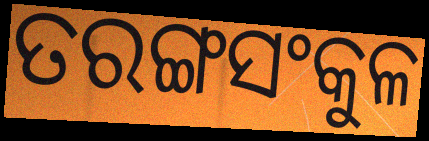
ତରଙ୍ଗସଂକୁଳ